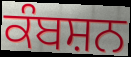
ਕੰਬਸ਼ਨ